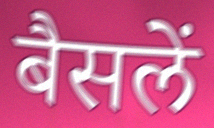
बैसलें